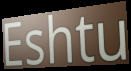
Eshtu